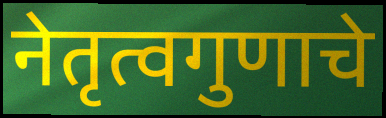
नेतृत्वगुणाचे